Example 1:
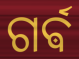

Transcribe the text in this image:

ଗର୍ଵ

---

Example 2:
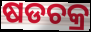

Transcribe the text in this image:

ଷଡଚକ୍ର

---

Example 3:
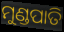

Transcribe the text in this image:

ମୁଣ୍ଡପାତି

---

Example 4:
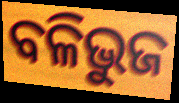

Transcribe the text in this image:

ବଳିଭୁଜ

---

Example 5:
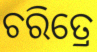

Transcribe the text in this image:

ଚରିତ୍ରେ